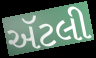
ઍટલી